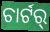
ଚାର୍ଟର୍